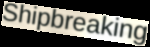
Shipbreaking